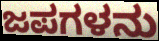
ಜಪಗಳನು